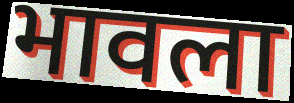
भावला